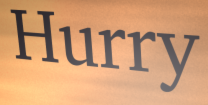
Hurry